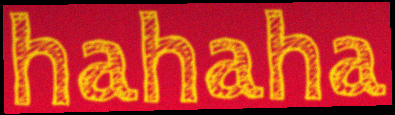
hahaha